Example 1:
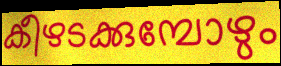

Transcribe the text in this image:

കീഴടക്കുമ്പോഴും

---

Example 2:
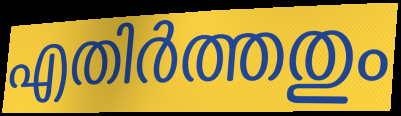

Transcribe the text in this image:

എതിർത്തതും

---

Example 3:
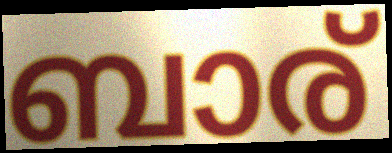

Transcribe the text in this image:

ബാര്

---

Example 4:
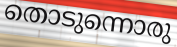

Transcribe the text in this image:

തൊടുന്നൊരു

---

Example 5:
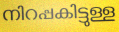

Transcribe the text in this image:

നിറപ്പകിട്ടുള്ള